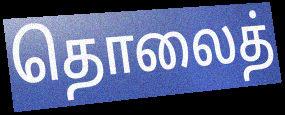
தொலைத்